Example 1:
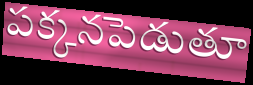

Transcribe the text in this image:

పక్కనపెడుతూ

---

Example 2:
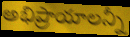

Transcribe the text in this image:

అభిప్రాయాలన్నీ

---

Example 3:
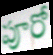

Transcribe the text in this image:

పూరో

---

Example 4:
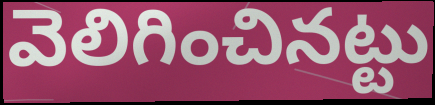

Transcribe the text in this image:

వెలిగించినట్టు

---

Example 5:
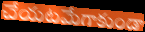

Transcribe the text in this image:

చేయటమేగాకుండా